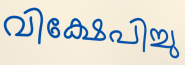
വിക്ഷേപിച്ചു